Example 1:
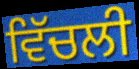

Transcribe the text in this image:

ਵਿੱਚਲੀ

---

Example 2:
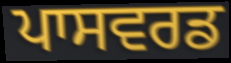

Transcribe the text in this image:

ਪਾਸਵਰਡ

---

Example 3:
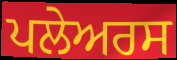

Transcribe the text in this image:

ਪਲੇਅਰਸ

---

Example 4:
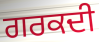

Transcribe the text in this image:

ਗਰਕਦੀ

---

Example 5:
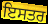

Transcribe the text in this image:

ਇਸਤਰ